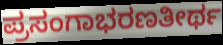
ಪ್ರಸಂಗಾಭರಣತೀರ್ಥ